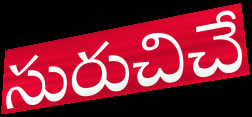
సురుచిచే